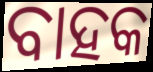
ବାହକ